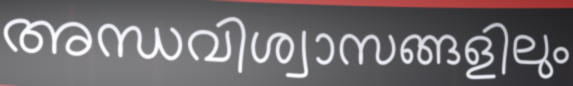
അന്ധവിശ്വാസങ്ങളിലും